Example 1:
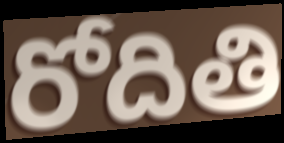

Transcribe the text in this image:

రోదితి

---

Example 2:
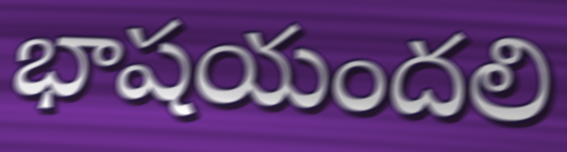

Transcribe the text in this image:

భాషయందలి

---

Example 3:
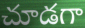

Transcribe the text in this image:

చూడగా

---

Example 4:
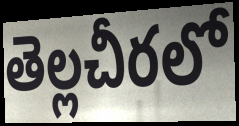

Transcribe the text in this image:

తెల్లచీరలో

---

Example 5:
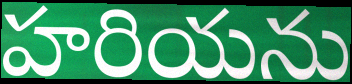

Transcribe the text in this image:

హరియను